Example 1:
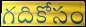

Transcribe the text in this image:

గదికోసం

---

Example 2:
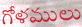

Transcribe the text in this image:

గోళములు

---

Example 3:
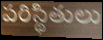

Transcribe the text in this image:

పరిస్థితులు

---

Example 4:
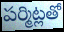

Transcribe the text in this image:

పర్మిట్లతో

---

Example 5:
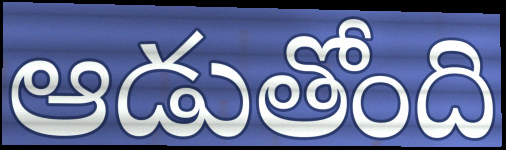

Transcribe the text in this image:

ఆడుతోంది